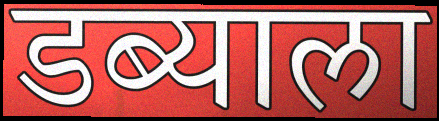
डब्याला